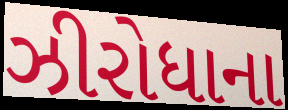
ઝીરોધાના